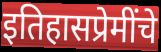
इतिहासप्रेमींचे